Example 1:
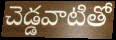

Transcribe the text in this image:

చెడ్డవాటితో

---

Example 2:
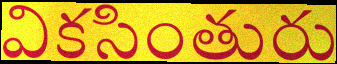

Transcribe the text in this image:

వికసింతురు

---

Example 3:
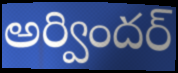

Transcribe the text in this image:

అర్విందర్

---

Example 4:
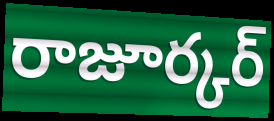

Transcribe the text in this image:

రాజూర్కర్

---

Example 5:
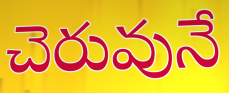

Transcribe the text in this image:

చెరువునే